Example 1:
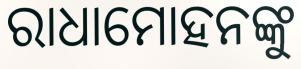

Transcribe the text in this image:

ରାଧାମୋହନଙ୍କୁ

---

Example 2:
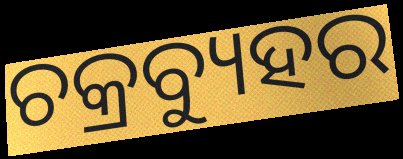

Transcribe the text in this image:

ଚକ୍ରବ୍ୟୁହର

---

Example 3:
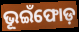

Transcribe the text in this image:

ଭୂଇଁଫୋଡ଼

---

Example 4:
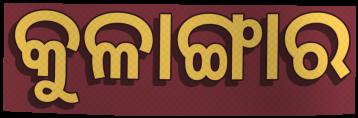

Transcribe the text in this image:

କୁଳାଙ୍ଗାର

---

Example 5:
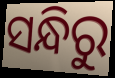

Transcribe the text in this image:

ସନ୍ଧିରୁ